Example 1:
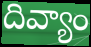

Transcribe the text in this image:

దివ్యాం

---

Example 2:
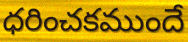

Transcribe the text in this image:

ధరించకముందే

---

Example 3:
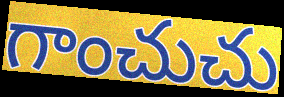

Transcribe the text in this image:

గాంచుచు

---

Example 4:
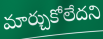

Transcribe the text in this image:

మార్చుకోలేదని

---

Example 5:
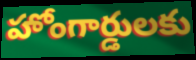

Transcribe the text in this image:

హోంగార్డులకు